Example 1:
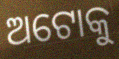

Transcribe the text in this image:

ଅଟୋକୁ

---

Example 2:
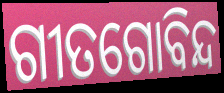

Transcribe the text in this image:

ଗୀତଗୋବିନ୍ଦ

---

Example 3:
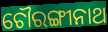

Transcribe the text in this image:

ଚୌରଙ୍ଗୀନାଥ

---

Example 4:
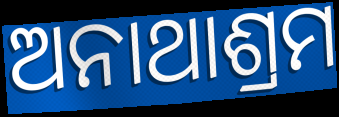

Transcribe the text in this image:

ଅନାଥାଶ୍ରମ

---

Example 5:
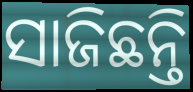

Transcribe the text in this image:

ସାଜିଛନ୍ତି